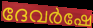
ദേവർഷേ